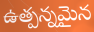
ఉత్పన్నమైన